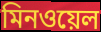
মিনওয়েল